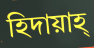
হিদায়াহ্